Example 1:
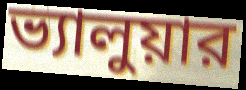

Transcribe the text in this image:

ভ্যালুয়ার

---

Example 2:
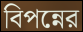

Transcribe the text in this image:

বিপন্নের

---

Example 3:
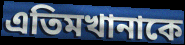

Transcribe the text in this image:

এতিমখানাকে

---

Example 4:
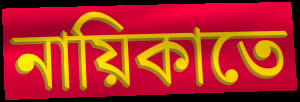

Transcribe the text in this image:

নায়িকাতে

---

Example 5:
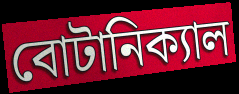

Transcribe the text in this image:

বোটানিক্যাল